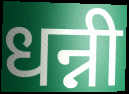
धन्नी